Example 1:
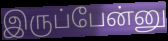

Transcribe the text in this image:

இருப்பேன்னு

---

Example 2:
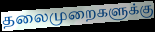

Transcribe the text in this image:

தலைமுறைகளுக்கு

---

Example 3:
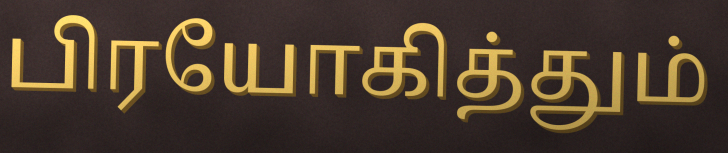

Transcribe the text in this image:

பிரயோகித்தும்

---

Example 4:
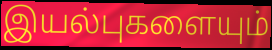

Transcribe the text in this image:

இயல்புகளையும்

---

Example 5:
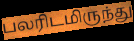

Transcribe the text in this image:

பலரிடமிருந்து